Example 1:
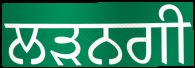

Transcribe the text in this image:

ਲੜਨਗੀ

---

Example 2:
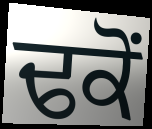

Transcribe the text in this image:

ਢਕੋਂ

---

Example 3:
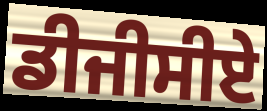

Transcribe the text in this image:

ਡੀਜੀਸੀਏ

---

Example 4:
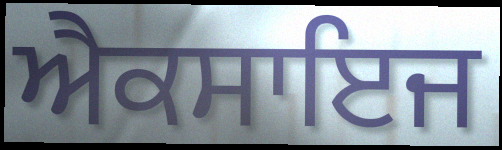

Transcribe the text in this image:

ਐਕਸਾਇਜ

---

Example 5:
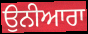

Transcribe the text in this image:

ਉਨੀਆਰਾ